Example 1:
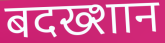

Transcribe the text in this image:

बदख्शान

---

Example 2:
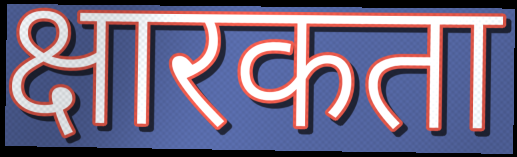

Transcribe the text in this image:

क्षारकता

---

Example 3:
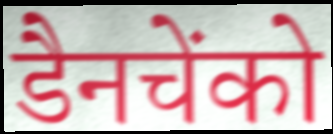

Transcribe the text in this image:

डैनचेंको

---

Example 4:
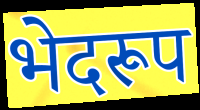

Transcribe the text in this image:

भेदरूप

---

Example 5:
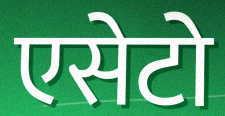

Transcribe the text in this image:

एसेटो